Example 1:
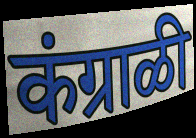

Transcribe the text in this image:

कंग्राळी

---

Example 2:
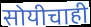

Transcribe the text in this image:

सोयीचाही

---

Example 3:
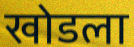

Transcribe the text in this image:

खोडला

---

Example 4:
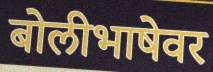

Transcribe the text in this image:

बोलीभाषेवर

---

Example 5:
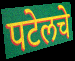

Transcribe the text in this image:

पटेलचे